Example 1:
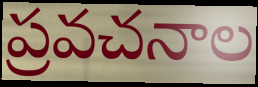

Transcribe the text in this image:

ప్రవచనాల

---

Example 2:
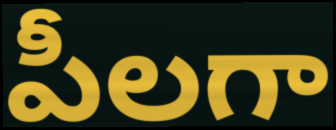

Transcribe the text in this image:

పీలగా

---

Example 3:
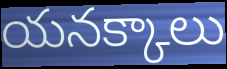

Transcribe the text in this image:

యనక్కాలు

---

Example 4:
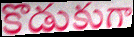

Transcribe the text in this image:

కొడుకుగా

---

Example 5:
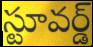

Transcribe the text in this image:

స్టూవర్డ్